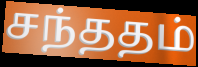
சந்ததம்